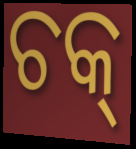
ଚକ୍